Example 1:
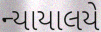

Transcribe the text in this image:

ન્યાયાલયે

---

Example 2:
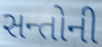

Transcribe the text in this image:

સન્તોની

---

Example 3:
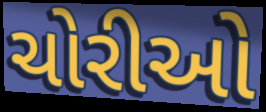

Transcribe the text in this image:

ચોરીઓ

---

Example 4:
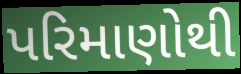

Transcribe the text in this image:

પરિમાણોથી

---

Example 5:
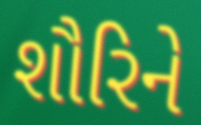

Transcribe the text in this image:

શૌરિને